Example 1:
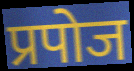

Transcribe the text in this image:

प्रपोज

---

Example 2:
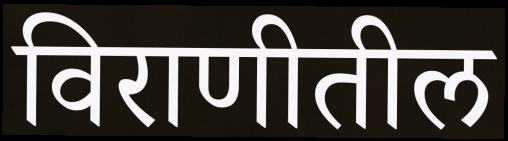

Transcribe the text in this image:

विराणीतील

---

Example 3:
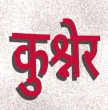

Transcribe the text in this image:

कुश्नेर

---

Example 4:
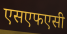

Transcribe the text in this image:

एसएफएसी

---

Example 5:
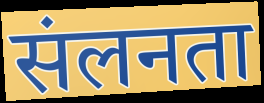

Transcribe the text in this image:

संलनता